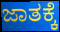
ಜಾತಕ್ಕೆ